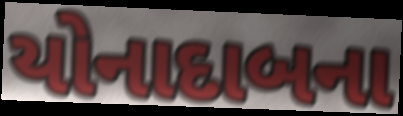
યોનાદાબના